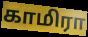
காமிரா